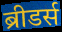
ब्रीडर्स